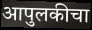
आपुलकीचा